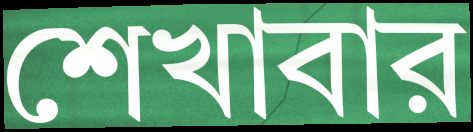
শেখাবার